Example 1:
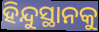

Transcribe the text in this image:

ହିନ୍ଦୁସ୍ଥାନକୁ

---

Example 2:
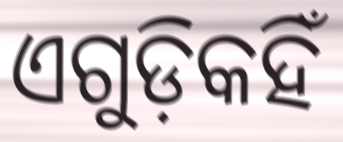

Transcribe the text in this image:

ଏଗୁଡ଼ିକହିଁ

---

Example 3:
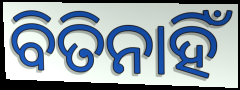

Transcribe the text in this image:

ବିତିନାହିଁ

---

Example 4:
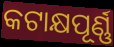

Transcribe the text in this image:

କଟାକ୍ଷପୂର୍ଣ୍ଣ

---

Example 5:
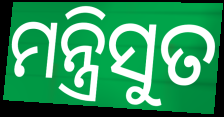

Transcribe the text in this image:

ମନ୍ତ୍ରିସୁତ